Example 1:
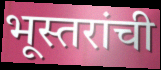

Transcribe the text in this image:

भूस्तरांची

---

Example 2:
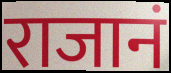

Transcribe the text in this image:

राजानं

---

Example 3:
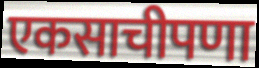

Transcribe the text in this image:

एकसाचीपणा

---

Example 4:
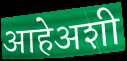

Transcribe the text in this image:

आहेअशी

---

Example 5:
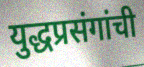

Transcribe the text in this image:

युद्धप्रसंगांची